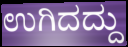
ಉಗಿದದ್ದು